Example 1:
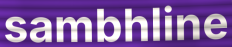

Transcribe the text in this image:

sambhline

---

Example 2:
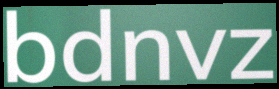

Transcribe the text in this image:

bdnvz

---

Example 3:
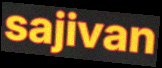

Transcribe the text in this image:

sajivan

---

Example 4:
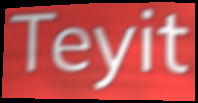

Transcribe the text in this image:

Teyit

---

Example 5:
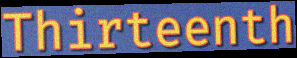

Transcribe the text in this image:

Thirteenth